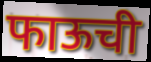
फाऊची